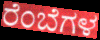
ರೆಂಬೆಗಳ